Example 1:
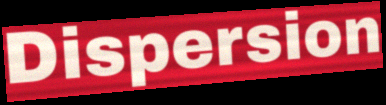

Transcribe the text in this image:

Dispersion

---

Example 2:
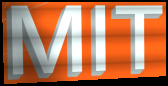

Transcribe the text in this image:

MIT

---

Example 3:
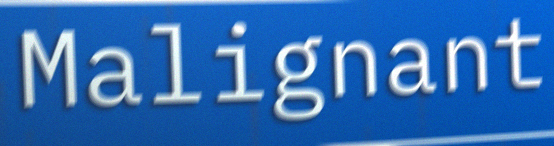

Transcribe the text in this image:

Malignant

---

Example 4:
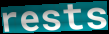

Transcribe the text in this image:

rests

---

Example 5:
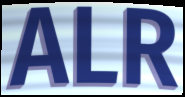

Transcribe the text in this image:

ALR